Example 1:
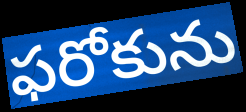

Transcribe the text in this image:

ఫరోకును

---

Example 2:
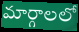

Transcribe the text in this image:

మార్గాలలో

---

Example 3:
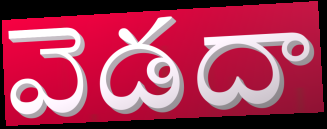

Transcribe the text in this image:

వెడదా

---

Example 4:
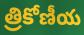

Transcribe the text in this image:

త్రికోణీయ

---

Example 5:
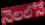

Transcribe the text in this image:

నెలలోనే